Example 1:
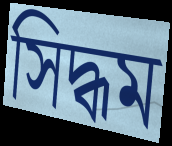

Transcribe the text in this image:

সিদ্ধম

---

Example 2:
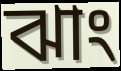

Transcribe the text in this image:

ঝাং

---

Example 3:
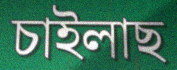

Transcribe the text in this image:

চাইলাছ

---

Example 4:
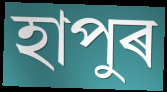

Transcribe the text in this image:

হাপুৰ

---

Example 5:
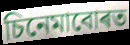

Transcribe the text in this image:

চিনেমাবোৰত